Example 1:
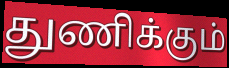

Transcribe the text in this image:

துணிக்கும்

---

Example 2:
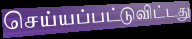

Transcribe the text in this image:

செய்யப்பட்டுவிட்டது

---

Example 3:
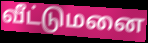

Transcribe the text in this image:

வீட்டுமனை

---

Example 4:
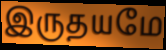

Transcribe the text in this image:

இருதயமே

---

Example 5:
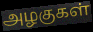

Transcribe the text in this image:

அழகுகள்